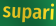
supari